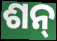
ଶନ୍